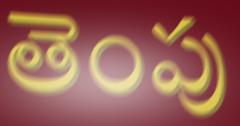
తెంపు